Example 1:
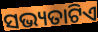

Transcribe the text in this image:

ସଭ୍ୟତାଟିଏ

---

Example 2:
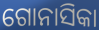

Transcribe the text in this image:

ଗୋନାସିକା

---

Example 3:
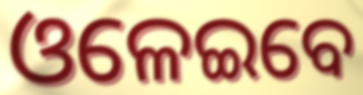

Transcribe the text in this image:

ଓଳେଇବେ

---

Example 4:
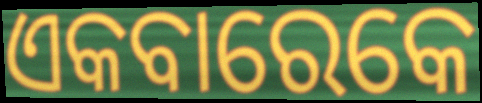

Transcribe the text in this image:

ଏକବାରେକେ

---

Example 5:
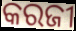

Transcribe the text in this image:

କରଜୀ